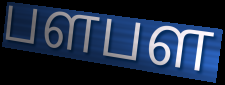
பளபள